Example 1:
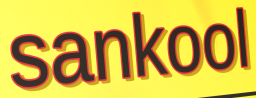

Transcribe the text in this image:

sankool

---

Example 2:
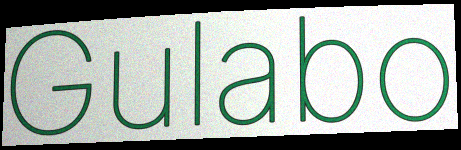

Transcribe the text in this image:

Gulabo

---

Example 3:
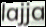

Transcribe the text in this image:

lajja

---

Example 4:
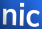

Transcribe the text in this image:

nic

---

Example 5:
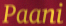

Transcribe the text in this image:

Paani